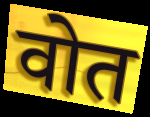
वोत